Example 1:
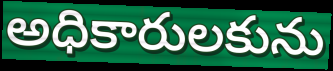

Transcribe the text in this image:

అధికారులకును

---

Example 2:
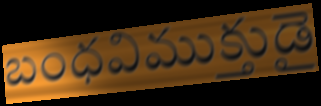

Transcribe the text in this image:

బంధవిముక్తుడై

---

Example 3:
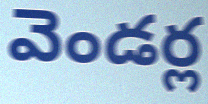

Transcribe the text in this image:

వెండర్ల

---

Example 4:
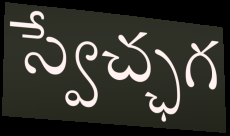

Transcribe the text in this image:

స్వేచ్ఛగ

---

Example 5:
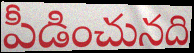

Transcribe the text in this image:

పీడించునది